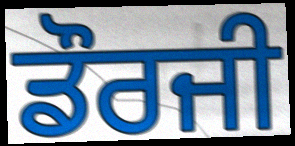
ਡੌਰਜੀ